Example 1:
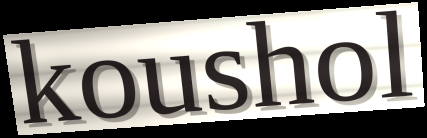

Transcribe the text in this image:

koushol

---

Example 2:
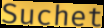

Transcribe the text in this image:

Suchet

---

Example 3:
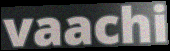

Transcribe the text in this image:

vaachi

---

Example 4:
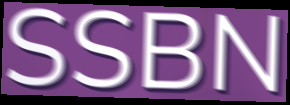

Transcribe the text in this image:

SSBN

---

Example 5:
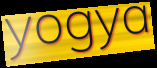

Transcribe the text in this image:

yogya